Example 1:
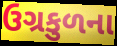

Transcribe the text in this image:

ઉગ્રકુળના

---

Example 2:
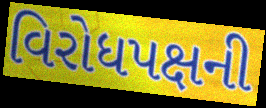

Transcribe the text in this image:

વિરોધપક્ષની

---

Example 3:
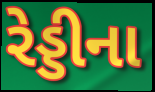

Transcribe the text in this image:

રેડ્ડીના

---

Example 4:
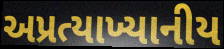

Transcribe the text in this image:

અપ્રત્યાખ્યાનીય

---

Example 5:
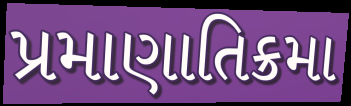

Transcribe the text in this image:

પ્રમાણાતિક્રમા